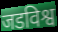
जडविश्व